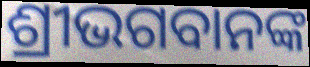
ଶ୍ରୀଭଗବାନଙ୍କ